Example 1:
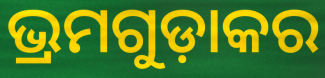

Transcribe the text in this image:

ଭ୍ରମଗୁଡ଼ାକର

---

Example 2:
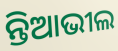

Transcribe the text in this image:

ନ୍ତିଆଭୀଲ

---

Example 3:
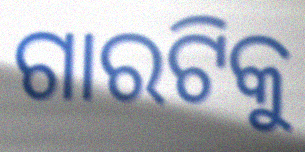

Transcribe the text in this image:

ଗାରଟିକୁ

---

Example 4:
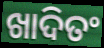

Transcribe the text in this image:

ଖାଦିତଂ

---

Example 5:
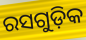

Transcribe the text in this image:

ରସଗୁଡ଼ିକ